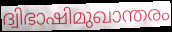
ദ്വിഭാഷിമുഖാന്തരം